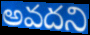
అవదని